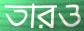
তারও